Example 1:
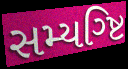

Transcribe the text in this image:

સમ્યગ્ષ્ટિ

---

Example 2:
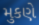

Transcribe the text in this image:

મુકણે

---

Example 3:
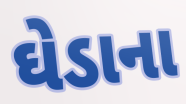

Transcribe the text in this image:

ઘેડાના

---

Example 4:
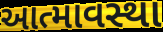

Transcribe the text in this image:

આત્માવસ્થા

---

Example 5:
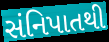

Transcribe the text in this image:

સંનિપાતથી